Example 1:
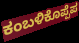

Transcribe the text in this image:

ಕಂಬಳಿಕೊಪ್ಪೆಪ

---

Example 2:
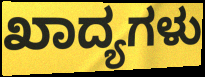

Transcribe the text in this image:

ಖಾದ್ಯಗಳು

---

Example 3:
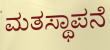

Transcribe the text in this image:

ಮತಸ್ಥಾಪನೆ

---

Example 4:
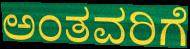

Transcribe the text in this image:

ಅಂತವರಿಗೆ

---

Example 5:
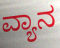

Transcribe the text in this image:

ವ್ಯಾನ